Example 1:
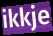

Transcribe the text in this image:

ikkje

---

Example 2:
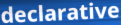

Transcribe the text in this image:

declarative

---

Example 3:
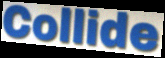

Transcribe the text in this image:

Collide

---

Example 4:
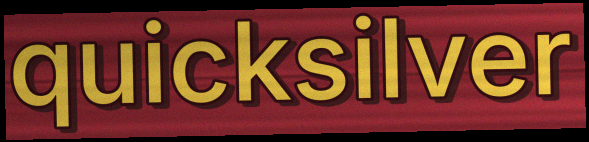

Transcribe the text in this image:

quicksilver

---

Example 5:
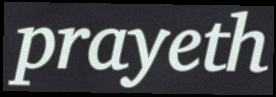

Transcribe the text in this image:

prayeth